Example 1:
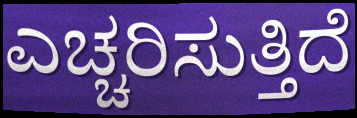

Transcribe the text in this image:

ಎಚ್ಚರಿಸುತ್ತಿದೆ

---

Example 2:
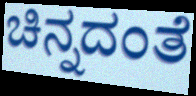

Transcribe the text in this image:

ಚಿನ್ನದಂತೆ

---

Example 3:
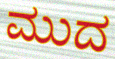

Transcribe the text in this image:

ಮುದ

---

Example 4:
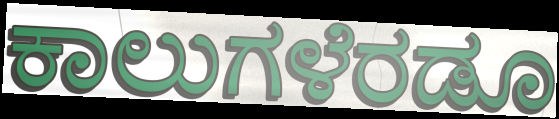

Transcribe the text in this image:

ಕಾಲುಗಳೆರಡೂ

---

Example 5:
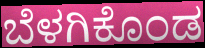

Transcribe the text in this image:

ಬೆಳಗಿಕೊಂಡ